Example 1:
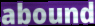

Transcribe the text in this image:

abound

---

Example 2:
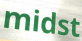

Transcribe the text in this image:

midst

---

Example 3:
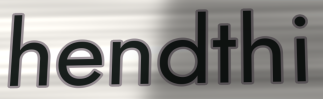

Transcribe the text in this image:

hendthi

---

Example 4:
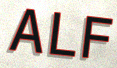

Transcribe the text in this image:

ALF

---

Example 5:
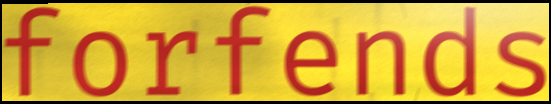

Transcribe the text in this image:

forfends